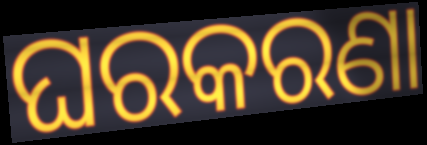
ଘରକରଣା